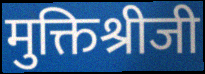
मुक्तिश्रीजी